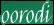
oorodi